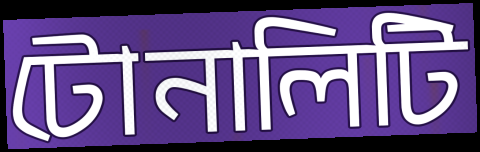
টোনালিটি